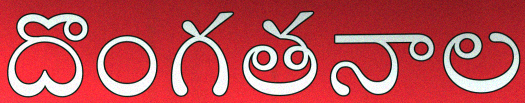
దొంగతనాల